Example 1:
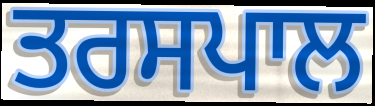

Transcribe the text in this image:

ਤਰਸਪਾਲ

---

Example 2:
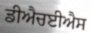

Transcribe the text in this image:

ਡੀਐਚਈਐਸ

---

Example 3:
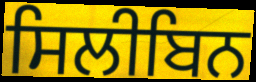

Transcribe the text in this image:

ਸਿਲੀਬਿਨ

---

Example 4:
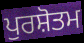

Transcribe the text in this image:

ਪੁਰਸ਼ੋਤਮ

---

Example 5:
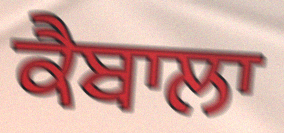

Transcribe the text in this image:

ਕੈਬਾਲਾ